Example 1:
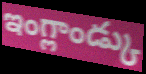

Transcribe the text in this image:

ఇంగ్లాండ్కు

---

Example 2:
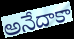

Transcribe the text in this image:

అనేదాకా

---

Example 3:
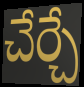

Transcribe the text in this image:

చేర్చే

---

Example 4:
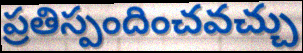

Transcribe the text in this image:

ప్రతిస్పందించవచ్చు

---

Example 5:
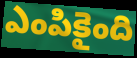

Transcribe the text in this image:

ఎంపికైంది